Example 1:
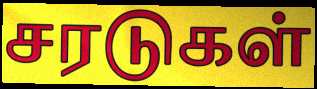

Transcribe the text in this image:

சரடுகள்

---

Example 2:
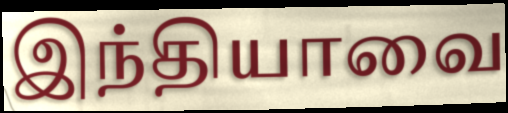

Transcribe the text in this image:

இந்தியாவை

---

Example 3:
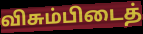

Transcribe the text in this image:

விசும்பிடைத்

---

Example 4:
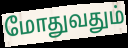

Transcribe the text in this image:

மோதுவதும்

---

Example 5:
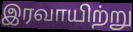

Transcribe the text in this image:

இரவாயிற்று